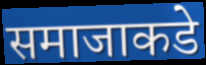
समाजाकडे